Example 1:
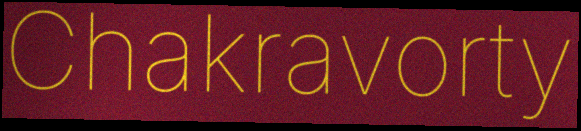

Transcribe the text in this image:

Chakravorty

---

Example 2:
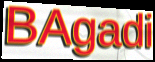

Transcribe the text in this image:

BAgadi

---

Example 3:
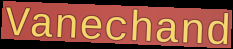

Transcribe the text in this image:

Vanechand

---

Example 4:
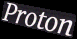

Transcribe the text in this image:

Proton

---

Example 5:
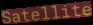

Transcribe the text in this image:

Satellite